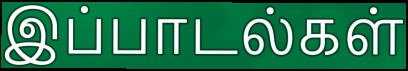
இப்பாடல்கள்